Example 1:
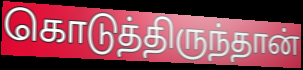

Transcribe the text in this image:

கொடுத்திருந்தான்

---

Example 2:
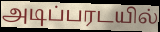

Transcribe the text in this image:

அடிப்பரடயில்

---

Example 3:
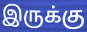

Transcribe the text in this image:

இருக்கு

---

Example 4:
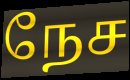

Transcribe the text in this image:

நேச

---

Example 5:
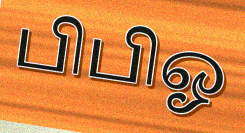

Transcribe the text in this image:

பிபிஓ